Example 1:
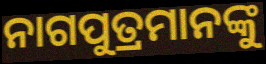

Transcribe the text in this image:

ନାଗପୁତ୍ରମାନଙ୍କୁ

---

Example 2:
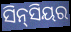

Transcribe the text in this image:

ସିନ୍‌ସିୟର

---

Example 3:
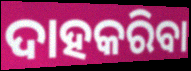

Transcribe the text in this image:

ଦାହକରିବା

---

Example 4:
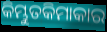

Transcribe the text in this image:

କିମ୍ଭୁତକିମାକାର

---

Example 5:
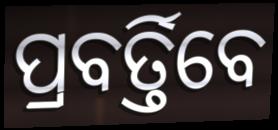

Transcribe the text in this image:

ପ୍ରବର୍ତ୍ତିବେ